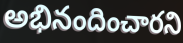
అభినందించారని